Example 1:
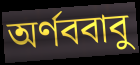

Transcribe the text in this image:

অর্ণববাবু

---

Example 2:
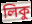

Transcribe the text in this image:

লিকু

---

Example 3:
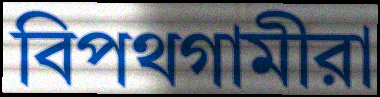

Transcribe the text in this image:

বিপথগামীরা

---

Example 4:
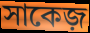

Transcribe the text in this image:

সাকেজ়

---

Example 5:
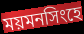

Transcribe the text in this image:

ময়মনসিংহে